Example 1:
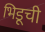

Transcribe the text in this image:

भिडूची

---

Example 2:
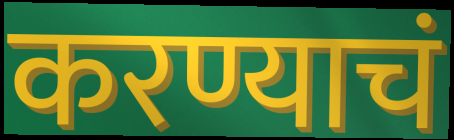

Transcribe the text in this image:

करण्याचं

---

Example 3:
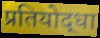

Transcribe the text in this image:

प्रतियोद्धा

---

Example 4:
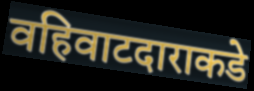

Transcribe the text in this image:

वहिवाटदाराकडे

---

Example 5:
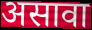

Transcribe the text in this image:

असावा